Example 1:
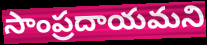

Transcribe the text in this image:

సాంప్రదాయమని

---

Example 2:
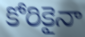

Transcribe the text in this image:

కోరికైనా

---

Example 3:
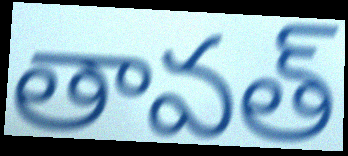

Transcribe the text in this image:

తావత్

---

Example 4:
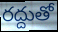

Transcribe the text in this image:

రద్దుతో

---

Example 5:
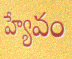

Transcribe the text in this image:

హ్యేవం